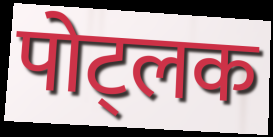
पोट्लक